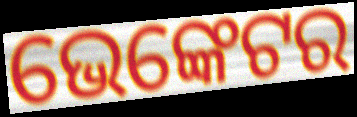
ଭେଙ୍କେଟର